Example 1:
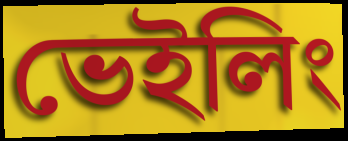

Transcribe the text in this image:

ভেইলিং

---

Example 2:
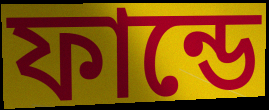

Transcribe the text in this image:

ফান্ডে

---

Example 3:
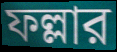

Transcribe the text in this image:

ফল্লার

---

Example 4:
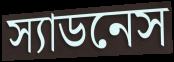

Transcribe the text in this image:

স্যাডনেস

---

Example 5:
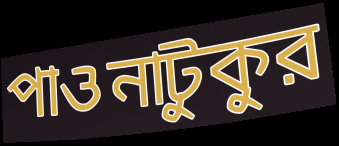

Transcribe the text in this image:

পাওনাটুকুর